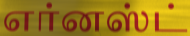
எர்னஸ்ட்